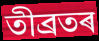
তীব্ৰতৰ